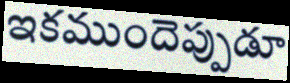
ఇకముందెప్పుడూ